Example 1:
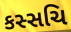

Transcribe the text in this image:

કસ્સચિ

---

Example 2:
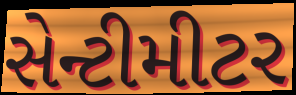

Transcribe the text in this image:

સેન્ટીમીટર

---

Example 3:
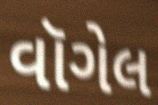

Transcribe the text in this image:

વૉગેલ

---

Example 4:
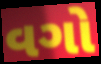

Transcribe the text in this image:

વગો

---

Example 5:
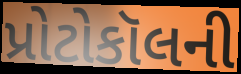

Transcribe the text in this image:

પ્રોટોકૉલની